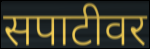
सपाटीवर